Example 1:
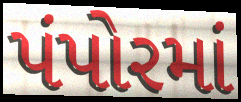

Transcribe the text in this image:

પંપોરમાં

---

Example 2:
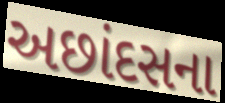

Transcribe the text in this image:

અછાંદસના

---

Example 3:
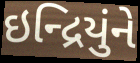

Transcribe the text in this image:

ઇન્દ્રિયુંને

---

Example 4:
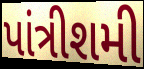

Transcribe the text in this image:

પાંત્રીશમી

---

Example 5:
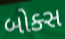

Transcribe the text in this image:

બોક્સ